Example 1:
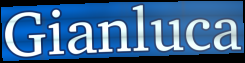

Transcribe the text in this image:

Gianluca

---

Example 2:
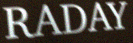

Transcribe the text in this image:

RADAY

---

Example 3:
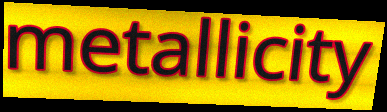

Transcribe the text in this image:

metallicity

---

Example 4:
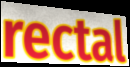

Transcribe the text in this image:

rectal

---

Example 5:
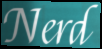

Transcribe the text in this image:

Nerd